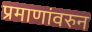
प्रमाणांवरुन